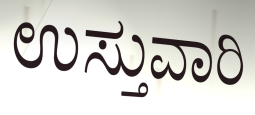
ಉಸ್ತುವಾರಿ